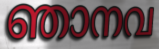
ഞാനവ